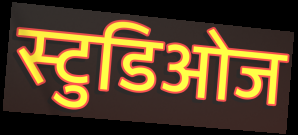
स्टुडिओज